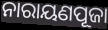
ନାରାୟଣପୂଜା